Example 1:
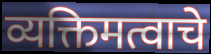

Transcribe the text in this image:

व्यक्तिमत्वाचे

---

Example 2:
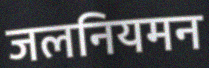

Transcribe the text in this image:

जलनियमन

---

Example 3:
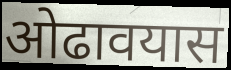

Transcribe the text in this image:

ओढावयास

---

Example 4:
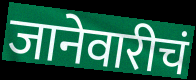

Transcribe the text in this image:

जानेवारीचं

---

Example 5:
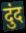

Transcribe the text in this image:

दुंद